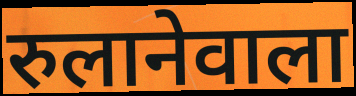
रुलानेवाला